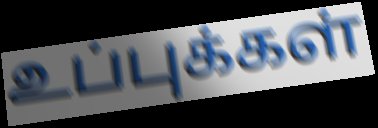
உப்புக்கள்